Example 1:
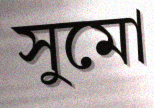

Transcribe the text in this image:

সুমো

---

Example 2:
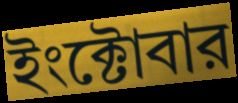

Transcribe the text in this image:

ইংক্টোবার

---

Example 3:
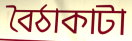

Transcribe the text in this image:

বৈঠাকাটা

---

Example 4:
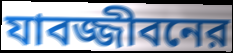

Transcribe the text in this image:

যাবজ্জীবনের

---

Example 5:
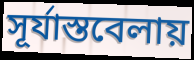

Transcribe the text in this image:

সূর্যাস্তবেলায়